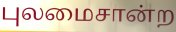
புலமைசான்ற